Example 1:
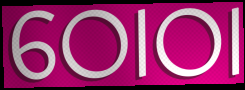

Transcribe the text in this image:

ଠୋଠା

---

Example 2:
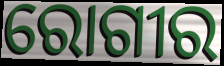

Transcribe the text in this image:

ରୋଗୀର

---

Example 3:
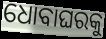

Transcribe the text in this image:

ଧୋବାଘରକୁ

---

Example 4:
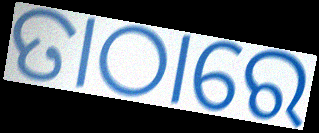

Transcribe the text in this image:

ତାଠାରେ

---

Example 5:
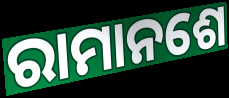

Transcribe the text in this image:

ରାମାନଶେ